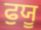
ਫੁਯੂ